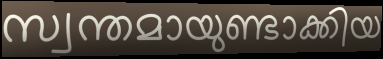
സ്വന്തമായുണ്ടാക്കിയ